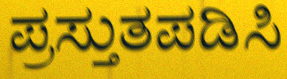
ಪ್ರಸ್ತುತಪಡಿಸಿ